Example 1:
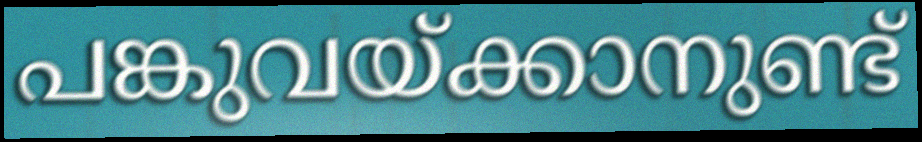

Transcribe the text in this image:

പങ്കുവയ്ക്കാനുണ്ട്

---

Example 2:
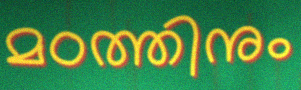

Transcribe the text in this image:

മഠത്തിനും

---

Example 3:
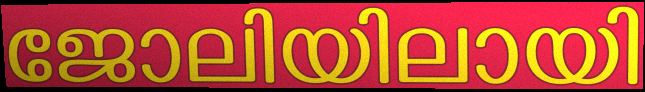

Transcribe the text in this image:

ജോലിയിലായി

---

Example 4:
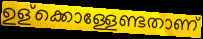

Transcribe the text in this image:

ഉള്ക്കൊള്ളേണ്ടതാണ്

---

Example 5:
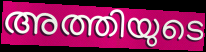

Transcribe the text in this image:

അത്തിയുടെ